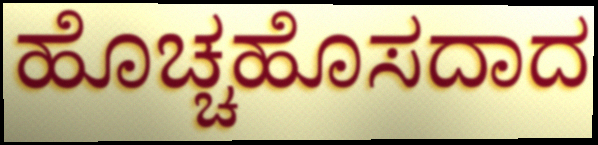
ಹೊಚ್ಚಹೊಸದಾದ